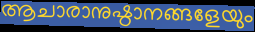
ആചാരാനുഷ്ഠാനങ്ങളേയും